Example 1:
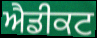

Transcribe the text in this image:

ਐਡੀਕਟ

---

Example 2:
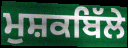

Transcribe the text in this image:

ਮੁਸ਼ਕਬਿੱਲੇ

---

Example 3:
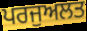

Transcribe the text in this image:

ਪਰਜੁਅਲਤ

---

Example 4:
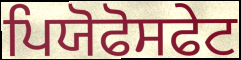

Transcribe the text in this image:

ਪਿਯੋਫੋਸਫੇਟ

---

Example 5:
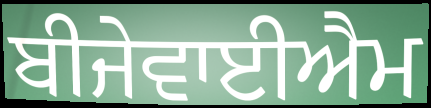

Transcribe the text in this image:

ਬੀਜੇਵਾਈਐਮ